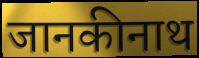
जानकीनाथ